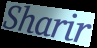
Sharir